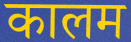
कालम